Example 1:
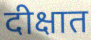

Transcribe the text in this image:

दीक्षात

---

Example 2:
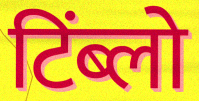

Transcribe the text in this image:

टिंब्लो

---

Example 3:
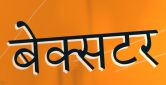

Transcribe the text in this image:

बेक्सटर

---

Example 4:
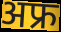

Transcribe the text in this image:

अफ्र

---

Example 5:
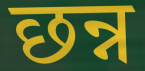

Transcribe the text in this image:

छन्न